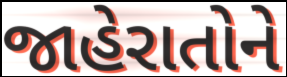
જાહેરાતોને